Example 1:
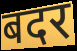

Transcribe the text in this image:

बदर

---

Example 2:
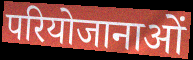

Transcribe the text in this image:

परियोजानाओं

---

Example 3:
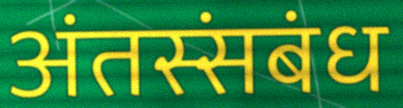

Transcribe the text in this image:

अंतस्संबंध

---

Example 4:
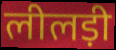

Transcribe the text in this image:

लीलड़ी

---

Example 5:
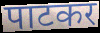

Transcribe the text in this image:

पाटकर